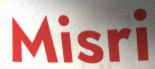
Misri